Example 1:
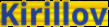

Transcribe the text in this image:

Kirillov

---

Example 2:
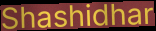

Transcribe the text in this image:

Shashidhar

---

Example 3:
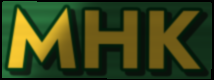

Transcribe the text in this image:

MHK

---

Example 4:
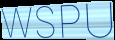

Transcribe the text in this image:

WSPU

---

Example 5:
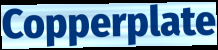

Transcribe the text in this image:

Copperplate